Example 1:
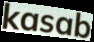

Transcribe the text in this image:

kasab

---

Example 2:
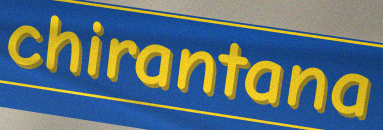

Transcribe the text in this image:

chirantana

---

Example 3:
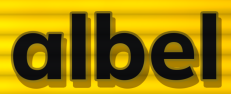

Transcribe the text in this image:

albel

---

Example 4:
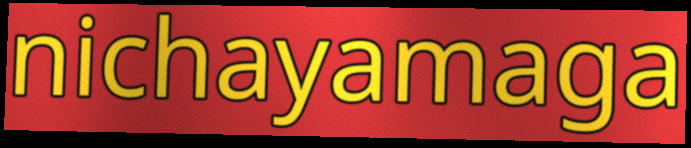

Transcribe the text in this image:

nichayamaga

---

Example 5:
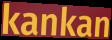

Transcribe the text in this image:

kankan